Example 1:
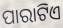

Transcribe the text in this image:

ପାରାଟିଏ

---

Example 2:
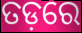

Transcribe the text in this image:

ତଡ଼ରେ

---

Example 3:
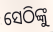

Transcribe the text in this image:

ସେଠିଙ୍କୁ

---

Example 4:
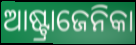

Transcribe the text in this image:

ଆଷ୍ଟ୍ରାଜେନିକା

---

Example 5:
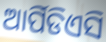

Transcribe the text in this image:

ଆର୍ପିଡିଏସି